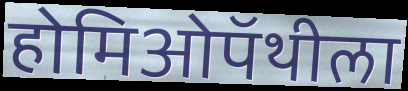
होमिओपॅथीला